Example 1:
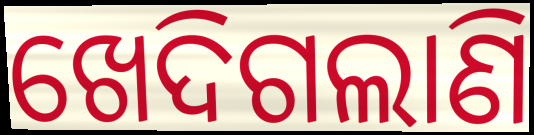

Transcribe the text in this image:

ଖେଦିଗଲାଣି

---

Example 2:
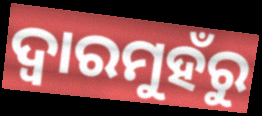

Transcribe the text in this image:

ଦ୍ଵାରମୁହଁରୁ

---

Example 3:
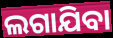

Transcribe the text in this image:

ଲଗାଯିବା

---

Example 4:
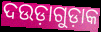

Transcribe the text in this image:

ଦଉଡ଼ାଗୁଡ଼ାକ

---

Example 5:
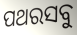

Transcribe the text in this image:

ପଥରସବୁ